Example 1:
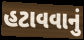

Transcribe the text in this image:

હટાવવાનું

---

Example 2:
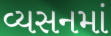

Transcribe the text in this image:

વ્યસનમાં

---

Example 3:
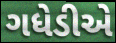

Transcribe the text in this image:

ગધેડીએ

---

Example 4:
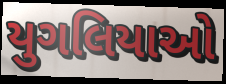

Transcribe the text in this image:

યુગલિયાઓ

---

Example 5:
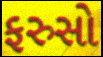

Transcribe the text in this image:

ફરુસો